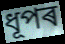
ধূপৰ